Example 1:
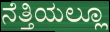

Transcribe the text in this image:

ನೆತ್ತಿಯಲ್ಲೂ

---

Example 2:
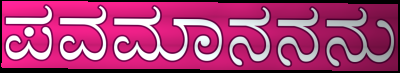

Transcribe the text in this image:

ಪವಮಾನನನು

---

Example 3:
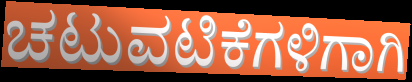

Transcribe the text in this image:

ಚಟುವಟಿಕೆಗಳಿಗಾಗಿ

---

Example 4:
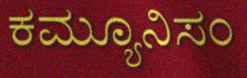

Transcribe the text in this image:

ಕಮ್ಯೂನಿಸಂ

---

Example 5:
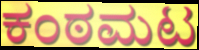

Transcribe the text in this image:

ಕಂಠಮಟ